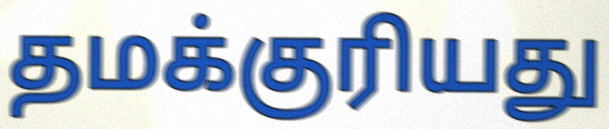
தமக்குரியது